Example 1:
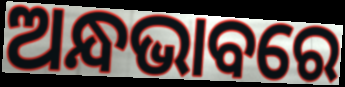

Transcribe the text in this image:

ଅନ୍ଧଭାବରେ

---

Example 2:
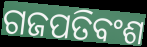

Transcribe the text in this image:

ଗଜପତିବଂଶ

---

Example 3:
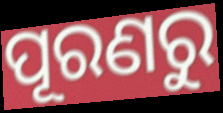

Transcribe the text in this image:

ପୂରଣରୁ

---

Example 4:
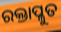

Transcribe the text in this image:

ରକ୍ତାପ୍ଳୁତ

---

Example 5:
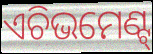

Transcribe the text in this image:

ଏଚିଭମେଣ୍ଟ୍